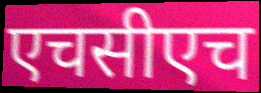
एचसीएच